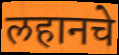
लहानचे